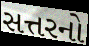
સત્તરનો